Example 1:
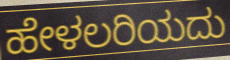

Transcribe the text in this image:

ಹೇಳಲರಿಯದು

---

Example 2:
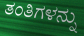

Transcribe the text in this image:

ತಂತಿಗಳನ್ನು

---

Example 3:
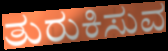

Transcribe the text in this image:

ತುರುಕಿಸುವ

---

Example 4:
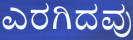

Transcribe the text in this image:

ಎರಗಿದವು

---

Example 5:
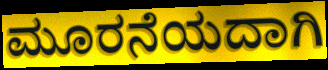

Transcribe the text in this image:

ಮೂರನೆಯದಾಗಿ